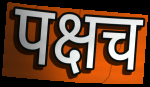
पक्षच